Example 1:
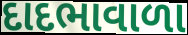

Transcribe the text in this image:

દાદભાવાળા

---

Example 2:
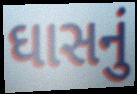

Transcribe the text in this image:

ઘાસનું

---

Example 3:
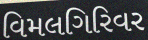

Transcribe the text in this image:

વિમલગિરિવર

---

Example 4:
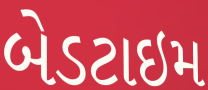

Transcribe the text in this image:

બેડટાઇમ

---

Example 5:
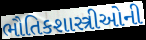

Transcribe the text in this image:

ભૌતિકશાસ્ત્રીઓની